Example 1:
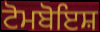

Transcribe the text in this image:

ਟੋਮਬੋਇਸ਼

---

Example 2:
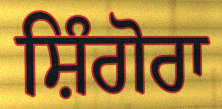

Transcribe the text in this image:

ਸ਼ਿੰਗੋਰਾ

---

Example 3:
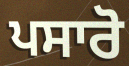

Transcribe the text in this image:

ਪਸਾਰੋ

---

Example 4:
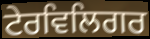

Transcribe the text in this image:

ਟੇਰਵਿਲਿਗਰ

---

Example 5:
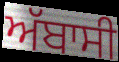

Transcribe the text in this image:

ਅੱਬਾਸੀ